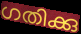
ഗതിക്കു